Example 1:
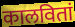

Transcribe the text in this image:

कालवितां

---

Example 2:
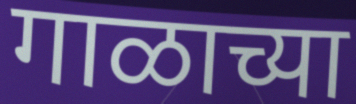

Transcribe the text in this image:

गाळाच्या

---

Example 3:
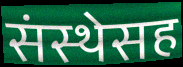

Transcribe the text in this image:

संस्थेसह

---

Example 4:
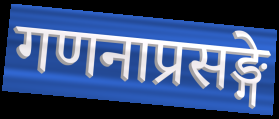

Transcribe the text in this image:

गणनाप्रसङ्गे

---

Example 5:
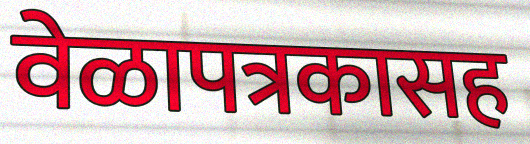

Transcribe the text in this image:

वेळापत्रकासह